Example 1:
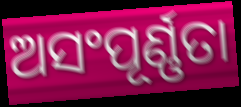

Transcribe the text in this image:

ଅସଂପୂର୍ଣ୍ଣତା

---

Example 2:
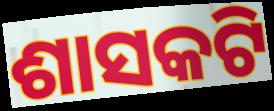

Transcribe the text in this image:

ଶାସକଟି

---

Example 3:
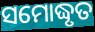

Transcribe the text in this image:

ସମୋଦ୍ଧୃତ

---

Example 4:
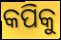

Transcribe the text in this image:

କପିକୁ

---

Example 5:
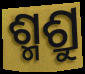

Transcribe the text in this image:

ଶ୍ମଶ୍ରୁ